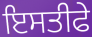
ਇਸਤੀਫੇ